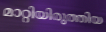
മാറ്റിയിരുത്തിയ